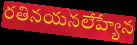
రతినయనలేహ్యేన